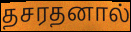
தசரதனால்